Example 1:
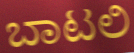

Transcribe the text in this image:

ಬಾಟಲಿ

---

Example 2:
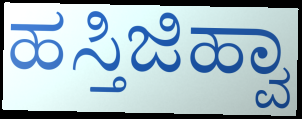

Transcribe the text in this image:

ಹಸ್ತಿಜಿಹ್ವಾ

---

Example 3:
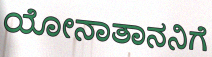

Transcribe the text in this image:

ಯೋನಾತಾನನಿಗೆ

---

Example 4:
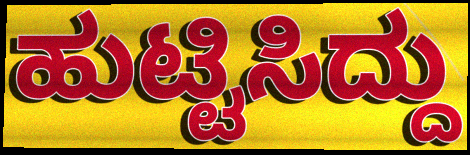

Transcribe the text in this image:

ಹುಟ್ಟಿಸಿದ್ದು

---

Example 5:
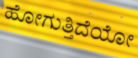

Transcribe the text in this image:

ಹೋಗುತ್ತಿದೆಯೋ